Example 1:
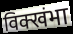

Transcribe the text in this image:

विक्खंभा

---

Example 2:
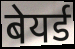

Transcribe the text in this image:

बेयर्ड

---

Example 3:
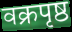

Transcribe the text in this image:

वक्रपृष्ठ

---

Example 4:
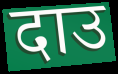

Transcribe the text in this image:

दाउ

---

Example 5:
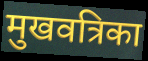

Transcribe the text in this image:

मुखवत्रिका